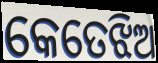
କେତେଝିଅ